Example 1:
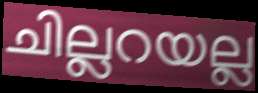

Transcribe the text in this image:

ചില്ലറയല്ല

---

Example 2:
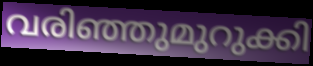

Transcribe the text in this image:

വരിഞ്ഞുമുറുക്കി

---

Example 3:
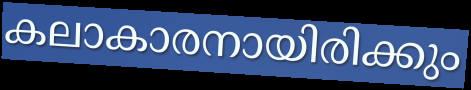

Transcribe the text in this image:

കലാകാരനായിരിക്കും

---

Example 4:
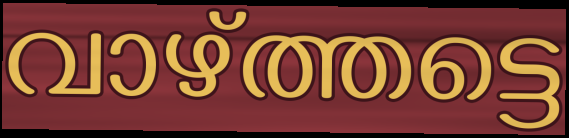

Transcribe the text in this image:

വാഴ്ത്തട്ടെ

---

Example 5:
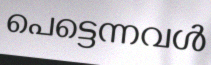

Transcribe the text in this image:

പെട്ടെന്നവൾ